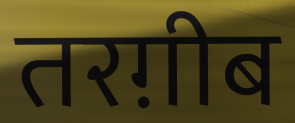
तरग़ीब